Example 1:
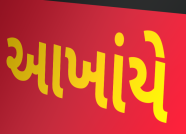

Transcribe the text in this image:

આખાંયે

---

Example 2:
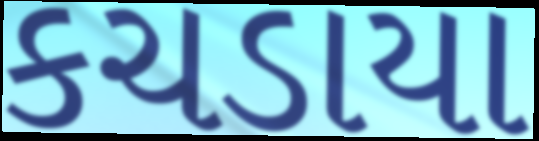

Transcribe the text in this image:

કચડાયા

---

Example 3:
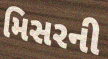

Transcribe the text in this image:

મિસરની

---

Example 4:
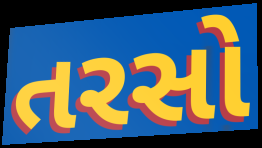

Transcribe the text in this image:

તરસો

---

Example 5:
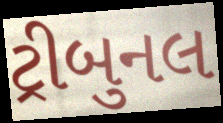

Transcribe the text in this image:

ટ્રીબુનલ